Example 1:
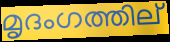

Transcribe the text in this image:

മൃദംഗത്തില്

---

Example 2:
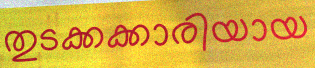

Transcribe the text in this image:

തുടക്കക്കാരിയായ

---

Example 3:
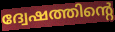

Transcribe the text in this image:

ദ്വേഷത്തിന്റെ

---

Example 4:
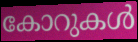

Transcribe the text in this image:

കോറുകൾ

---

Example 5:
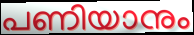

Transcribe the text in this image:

പണിയാനും